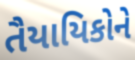
તૈયાયિકોને